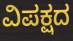
ವಿಪಕ್ಷದ